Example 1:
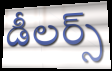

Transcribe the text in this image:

డీలర్స్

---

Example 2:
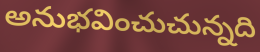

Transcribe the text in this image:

అనుభవించుచున్నది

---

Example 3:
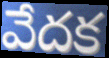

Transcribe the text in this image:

వేదక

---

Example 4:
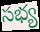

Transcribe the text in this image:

సభ్య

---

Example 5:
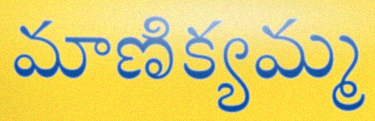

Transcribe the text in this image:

మాణిక్యమ్మ